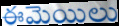
ఈమెయిలు